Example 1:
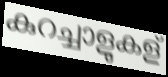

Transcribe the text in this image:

കുറച്ചാളുകള്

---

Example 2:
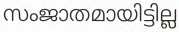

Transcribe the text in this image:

സംജാതമായിട്ടില്ല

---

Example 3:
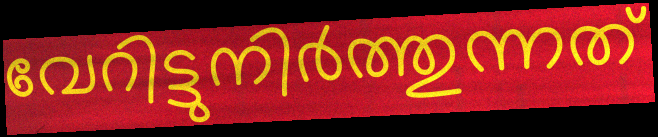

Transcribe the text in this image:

വേറിട്ടുനിർത്തുന്നത്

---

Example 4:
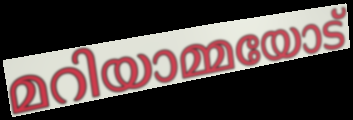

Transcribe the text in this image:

മറിയാമ്മയോട്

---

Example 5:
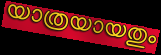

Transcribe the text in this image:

യാത്രയായതും